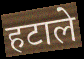
हटाले